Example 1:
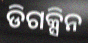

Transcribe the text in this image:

ଡିଗକ୍ସିନ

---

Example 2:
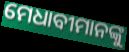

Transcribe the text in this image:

ମେଧାବୀମାନଙ୍କୁ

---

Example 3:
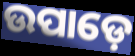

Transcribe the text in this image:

ଉପାଡ଼େ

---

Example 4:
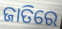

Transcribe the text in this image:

ଜାତିରେ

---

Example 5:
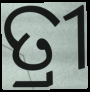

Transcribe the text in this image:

ତ୍ରୀ